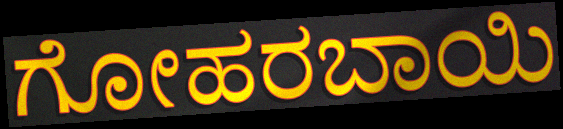
ಗೋಹರಬಾಯಿ